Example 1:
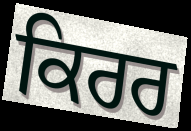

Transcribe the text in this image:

ਕਿਰਰ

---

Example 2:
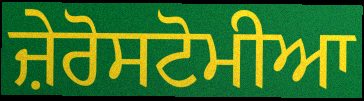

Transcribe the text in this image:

ਜ਼ੇਰੋਸਟੋਮੀਆ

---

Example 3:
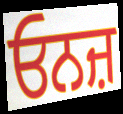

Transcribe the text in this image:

ਓਨਜ਼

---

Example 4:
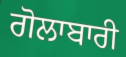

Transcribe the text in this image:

ਗੋਲਾਬਾਰੀ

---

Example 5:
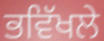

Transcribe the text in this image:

ਭਵਿੱਖਲੇ